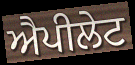
ਐਪੀਲੇਟ